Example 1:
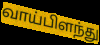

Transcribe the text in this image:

வாய்பிளந்து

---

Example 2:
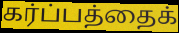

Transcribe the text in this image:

கர்ப்பத்தைக்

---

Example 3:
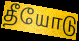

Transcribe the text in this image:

தீயோடு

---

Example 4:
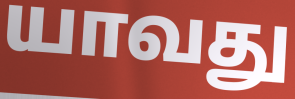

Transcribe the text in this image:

யாவது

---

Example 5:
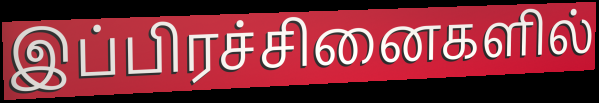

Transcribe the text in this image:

இப்பிரச்சினைகளில்